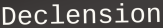
Declension